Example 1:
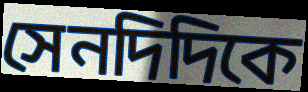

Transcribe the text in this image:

সেনদিদিকে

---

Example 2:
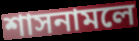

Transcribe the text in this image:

শাসনামলে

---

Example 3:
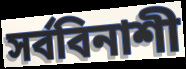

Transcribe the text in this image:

সর্ববিনাশী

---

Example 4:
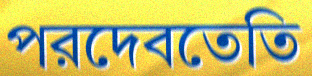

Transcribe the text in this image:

পরদেবতেতি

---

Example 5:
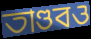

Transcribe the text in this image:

তাণ্ডবও